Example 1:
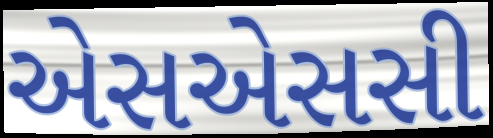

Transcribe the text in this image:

એસએસસી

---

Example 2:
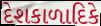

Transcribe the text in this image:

દેશકાળાદિકે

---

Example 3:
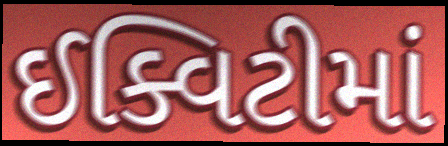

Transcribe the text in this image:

ઈક્વિટીમાં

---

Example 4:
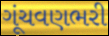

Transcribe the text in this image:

ગૂંચવણભરી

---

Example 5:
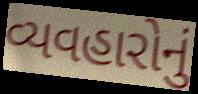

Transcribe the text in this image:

વ્યવહારોનું